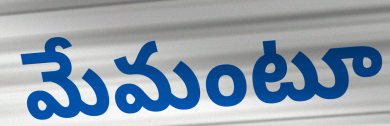
మేమంటూ